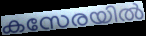
കസേരയിൽ